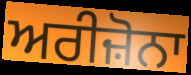
ਅਰੀਜ਼ੋਨਾ